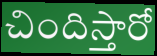
చిందిస్తారో